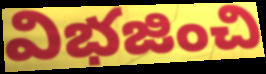
విభజించి